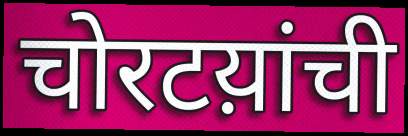
चोरटय़ांची